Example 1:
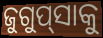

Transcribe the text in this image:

ଜୁଗୁପ୍‍ସାକୁ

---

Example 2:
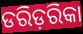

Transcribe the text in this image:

ଡରିଡ଼ରିକା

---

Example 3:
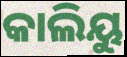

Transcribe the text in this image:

କାଲିୟୁ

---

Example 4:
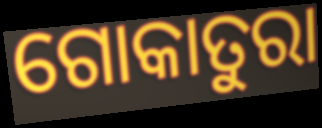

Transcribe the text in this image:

ଗୋକାତୁରା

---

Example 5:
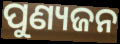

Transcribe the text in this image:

ପୁଣ୍ୟଜନ